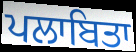
ਪਲਾਬਿਤਾ